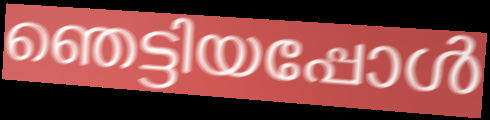
ഞെട്ടിയപ്പോൾ